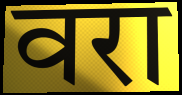
वरा